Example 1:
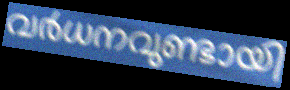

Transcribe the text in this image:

വർധനവുണ്ടായി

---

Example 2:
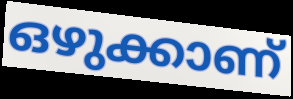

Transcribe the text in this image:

ഒഴുക്കാണ്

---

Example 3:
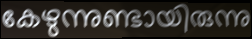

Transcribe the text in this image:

കേഴുന്നുണ്ടായിരുന്നു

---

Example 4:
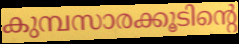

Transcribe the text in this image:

കുമ്പസാരക്കൂടിന്റെ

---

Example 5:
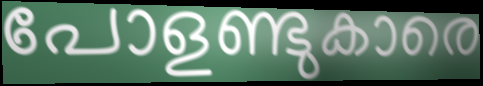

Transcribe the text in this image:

പോളണ്ടുകാരെ